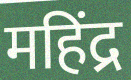
महिंद्र